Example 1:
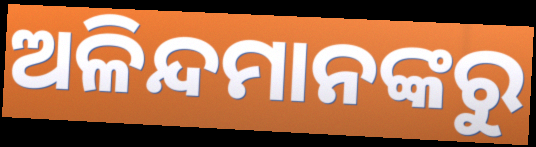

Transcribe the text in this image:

ଅଳିନ୍ଦମାନଙ୍କରୁ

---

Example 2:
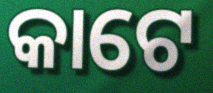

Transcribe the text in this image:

କାଟେ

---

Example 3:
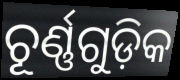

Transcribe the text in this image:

ଚୂର୍ଣ୍ଣଗୁଡ଼ିକ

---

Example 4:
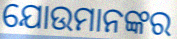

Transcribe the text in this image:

ଯୋଉମାନଙ୍କର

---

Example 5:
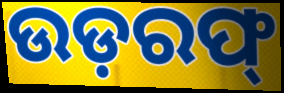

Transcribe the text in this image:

ଉଡ଼ରଫ୍